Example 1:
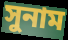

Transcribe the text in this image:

সুনাম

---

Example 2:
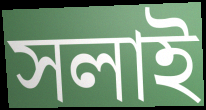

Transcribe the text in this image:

সলাই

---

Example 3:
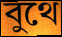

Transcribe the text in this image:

বুথে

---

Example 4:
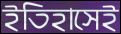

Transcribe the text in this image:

ইতিহাসেই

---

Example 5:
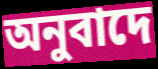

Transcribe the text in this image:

অনুবাদে